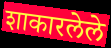
शाकारलेले